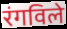
रंगविले